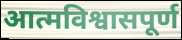
आत्मविश्वासपूर्ण